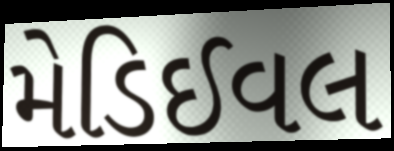
મેડિઈવલ